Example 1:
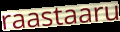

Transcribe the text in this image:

raastaaru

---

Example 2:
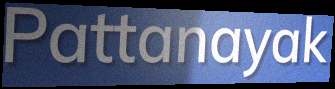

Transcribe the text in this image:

Pattanayak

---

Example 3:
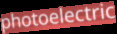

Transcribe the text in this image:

photoelectric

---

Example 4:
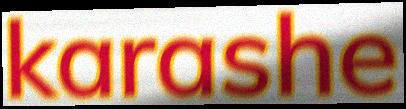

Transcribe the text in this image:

karashe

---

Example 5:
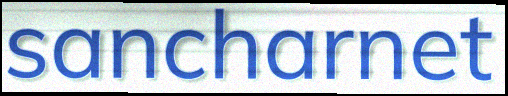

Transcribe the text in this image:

sancharnet